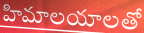
హిమాలయాలతో